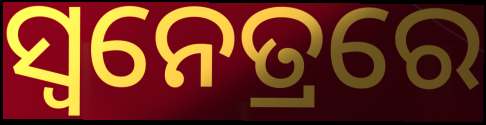
ସ୍ୱନେତ୍ରରେ